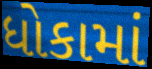
ધોકામાં